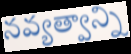
నవ్యత్వాన్ని